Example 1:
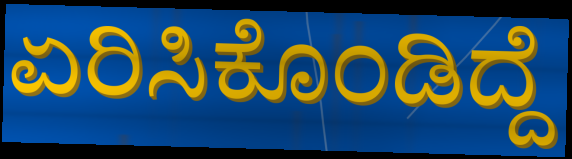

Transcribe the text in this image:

ಏರಿಸಿಕೊಂಡಿದ್ದೆ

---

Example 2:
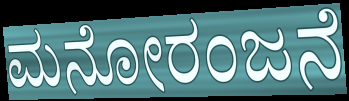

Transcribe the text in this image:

ಮನೋರಂಜನೆ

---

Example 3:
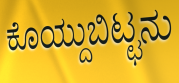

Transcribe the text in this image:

ಕೊಯ್ದುಬಿಟ್ಟನು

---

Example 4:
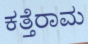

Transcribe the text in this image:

ಕತ್ತೆರಾಮ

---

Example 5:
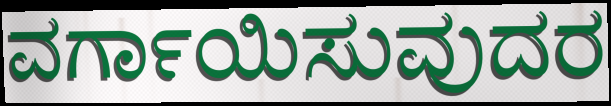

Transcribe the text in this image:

ವರ್ಗಾಯಿಸುವುದರ